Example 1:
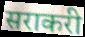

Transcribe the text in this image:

सराकरी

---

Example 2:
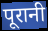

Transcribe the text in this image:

पूरानी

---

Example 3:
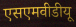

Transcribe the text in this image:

एसएमवीडीयू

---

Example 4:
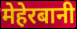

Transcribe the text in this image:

मेहेरबानी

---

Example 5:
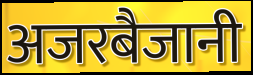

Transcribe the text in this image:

अजरबैजानी